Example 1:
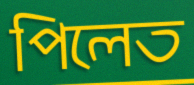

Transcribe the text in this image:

পিলেত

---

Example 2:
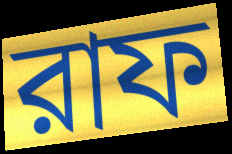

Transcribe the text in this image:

রাফ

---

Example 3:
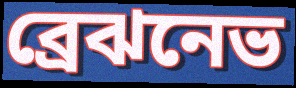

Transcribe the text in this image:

ব্রেঝনেভ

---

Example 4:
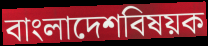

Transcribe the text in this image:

বাংলাদেশবিষয়ক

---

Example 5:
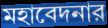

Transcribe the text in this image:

মহাবেদনার